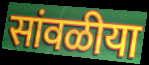
सांवळीया